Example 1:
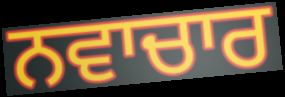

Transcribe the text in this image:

ਨਵਾਚਾਰ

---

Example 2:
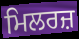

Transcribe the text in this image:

ਮਿਲਰਜ਼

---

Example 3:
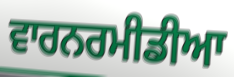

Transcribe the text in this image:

ਵਾਰਨਰਮੀਡੀਆ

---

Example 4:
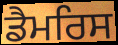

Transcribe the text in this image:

ਡੈਮਰਿਸ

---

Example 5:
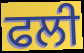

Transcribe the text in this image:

ਫਲੀ